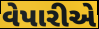
વેપારીએ